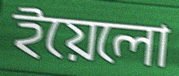
ইয়েলো